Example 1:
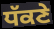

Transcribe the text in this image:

ਧੱਕਣੇ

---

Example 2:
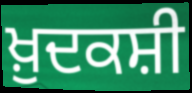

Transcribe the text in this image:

ਖ਼ੁਦਕਸ਼ੀ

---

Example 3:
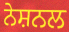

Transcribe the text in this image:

ਨੇਸ਼ਨਲ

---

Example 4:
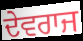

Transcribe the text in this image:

ਦੇਵਰਾਜ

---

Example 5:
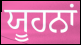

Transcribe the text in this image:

ਯੂਹਨਾਂ